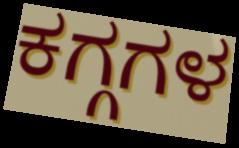
ಕಗ್ಗಗಳ